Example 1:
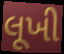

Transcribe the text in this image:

લૂખી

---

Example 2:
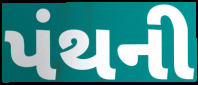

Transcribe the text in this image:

પંથની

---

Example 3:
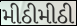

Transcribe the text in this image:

મીઠીમીઠી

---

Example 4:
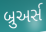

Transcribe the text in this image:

બ્રુઅર્સ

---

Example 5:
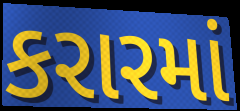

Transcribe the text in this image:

કરારમાં